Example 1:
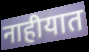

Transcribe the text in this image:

नाहीयात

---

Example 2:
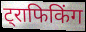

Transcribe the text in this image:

ट्राफिकिंग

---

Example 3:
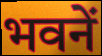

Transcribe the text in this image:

भवनें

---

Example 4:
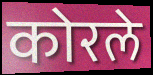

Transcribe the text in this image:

कोरले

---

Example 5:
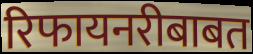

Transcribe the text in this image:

रिफायनरीबाबत